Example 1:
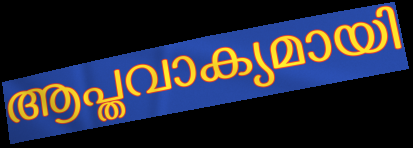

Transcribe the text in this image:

ആപ്തവാക്യമായി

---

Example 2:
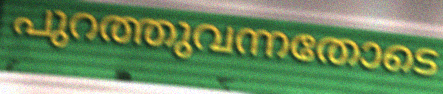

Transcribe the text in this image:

പുറത്തുവന്നതോടെ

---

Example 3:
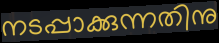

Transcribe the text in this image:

നടപ്പാക്കുന്നതിനു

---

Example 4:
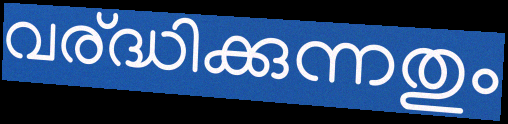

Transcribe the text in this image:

വര്ദ്ധിക്കുന്നതും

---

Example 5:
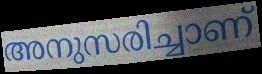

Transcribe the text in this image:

അനുസരിച്ചാണ്